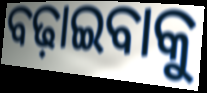
ବଢ଼ାଇବାକୁ